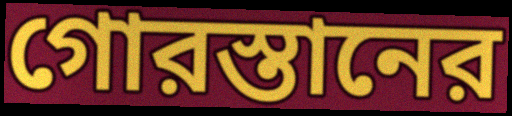
গোরস্তানের